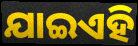
ଯାଇଏହି